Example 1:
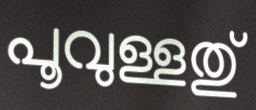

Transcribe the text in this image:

പൂവുള്ളതു്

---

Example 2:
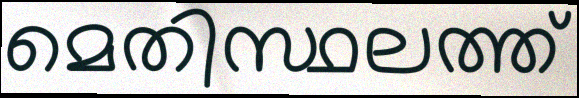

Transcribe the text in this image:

മെതിസ്ഥലത്ത്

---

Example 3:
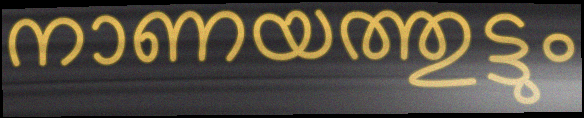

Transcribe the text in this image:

നാണയത്തുട്ടും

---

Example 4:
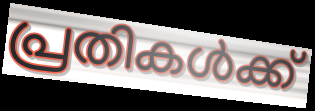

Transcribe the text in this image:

പ്രതികൾക്ക്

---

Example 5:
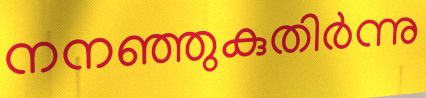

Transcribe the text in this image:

നനഞ്ഞുകുതിർന്നു